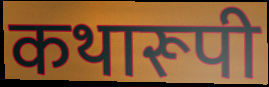
कथारूपी